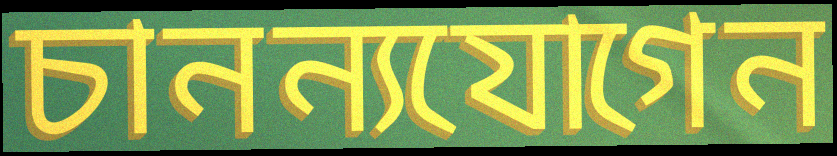
চানন্যযোগেন